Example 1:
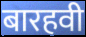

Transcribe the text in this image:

बारहवी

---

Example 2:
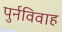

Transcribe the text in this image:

पुर्नविवाह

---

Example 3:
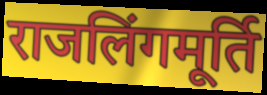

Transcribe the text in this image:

राजलिंगमूर्ति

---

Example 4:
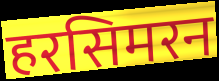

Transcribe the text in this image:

हरसिमरन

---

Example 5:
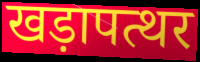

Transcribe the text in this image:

खड़ापत्थर